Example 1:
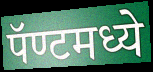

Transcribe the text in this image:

पॅण्टमध्ये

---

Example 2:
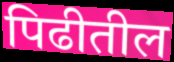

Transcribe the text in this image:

पिढीतील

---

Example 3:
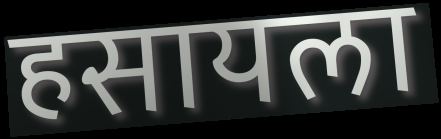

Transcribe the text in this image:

हसायला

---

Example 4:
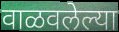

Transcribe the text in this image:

वाळवलेल्या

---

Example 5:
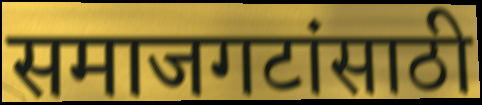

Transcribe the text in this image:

समाजगटांसाठी